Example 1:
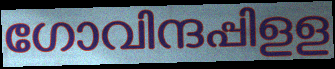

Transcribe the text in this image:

ഗോവിന്ദപ്പിളള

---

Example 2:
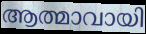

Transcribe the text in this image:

ആത്മാവായി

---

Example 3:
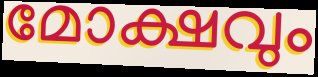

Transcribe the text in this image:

മോക്ഷവും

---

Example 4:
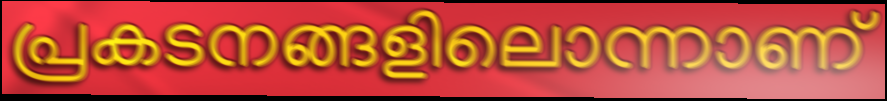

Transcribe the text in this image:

പ്രകടനങ്ങളിലൊന്നാണ്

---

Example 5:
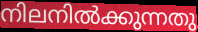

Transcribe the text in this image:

നിലനിൽക്കുന്നതു